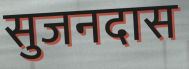
सुजनदास